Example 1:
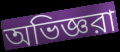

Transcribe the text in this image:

অভিজ্ঞরা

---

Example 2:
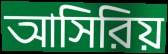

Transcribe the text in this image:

আসিরিয়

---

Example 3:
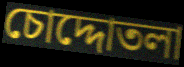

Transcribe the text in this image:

চোদ্দোতলা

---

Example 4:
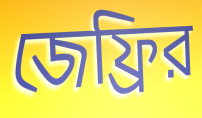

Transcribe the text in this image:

জেফ্রির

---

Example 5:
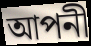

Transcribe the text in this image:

আপনী